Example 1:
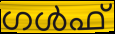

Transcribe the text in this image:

ഗൾഫ്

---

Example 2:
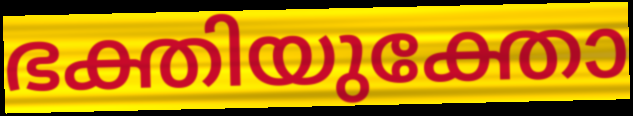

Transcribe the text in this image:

ഭക്തിയുക്തോ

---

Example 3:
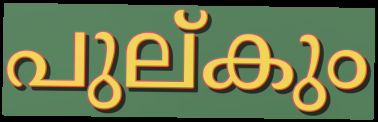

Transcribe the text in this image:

പുല്കും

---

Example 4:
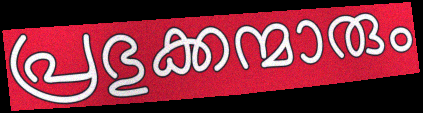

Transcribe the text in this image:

പ്രഭുക്കന്മാരും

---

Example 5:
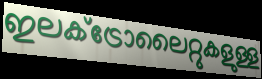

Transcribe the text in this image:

ഇലക്ട്രോലൈറ്റുകളുള്ള